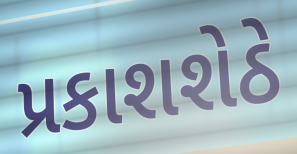
પ્રકાશશેઠે